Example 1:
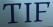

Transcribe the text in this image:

TIF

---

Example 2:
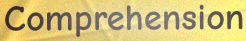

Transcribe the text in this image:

Comprehension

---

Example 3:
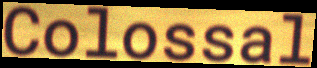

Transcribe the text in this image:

Colossal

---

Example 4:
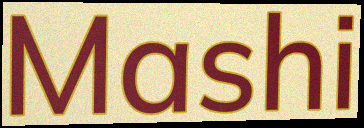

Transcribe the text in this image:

Mashi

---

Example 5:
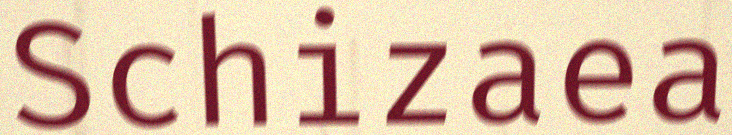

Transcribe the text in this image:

Schizaea